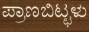
ಪ್ರಾಣಬಿಟ್ಟಳು